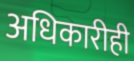
अधिकारीही